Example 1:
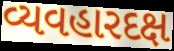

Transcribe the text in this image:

વ્યવહારદક્ષ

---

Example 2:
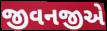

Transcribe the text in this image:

જીવનજીએ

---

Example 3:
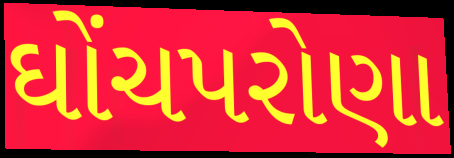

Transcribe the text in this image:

ઘોંચપરોણા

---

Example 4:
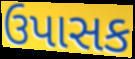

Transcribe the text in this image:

ઉપાસક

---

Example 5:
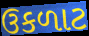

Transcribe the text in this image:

ઉકળાટ